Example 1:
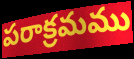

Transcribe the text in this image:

పరాక్రమము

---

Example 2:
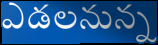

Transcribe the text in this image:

ఎడలనున్న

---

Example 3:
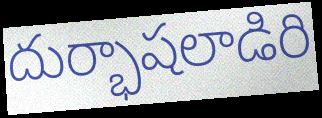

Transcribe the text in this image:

దుర్భాషలాడిరి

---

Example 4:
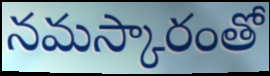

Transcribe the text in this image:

నమస్కారంతో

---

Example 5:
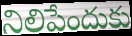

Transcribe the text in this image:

నిలిపేందుకు